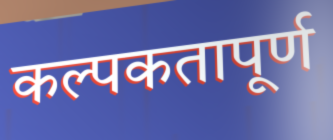
कल्पकतापूर्ण